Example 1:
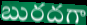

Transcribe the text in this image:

బురదగా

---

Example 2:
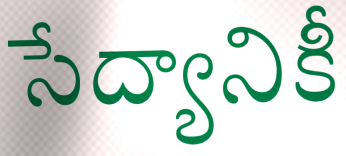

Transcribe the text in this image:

సేద్యానికీ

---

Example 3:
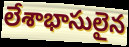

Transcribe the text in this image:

లేశాభాసులైన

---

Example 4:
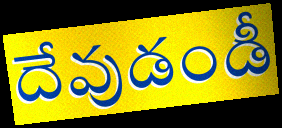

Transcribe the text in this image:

దేవుడండీ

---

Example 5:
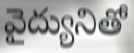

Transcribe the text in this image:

వైద్యునితో